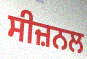
ਸੀਜ਼ਨਲ